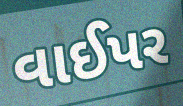
વાઈપર